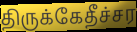
திருக்கேதீச்சர